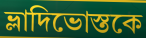
ভ্লাদিভোস্তকে